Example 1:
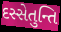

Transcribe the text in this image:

દસ્સેતુન્તિ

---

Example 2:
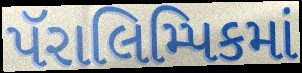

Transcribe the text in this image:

પૅરાલિમ્પિકમાં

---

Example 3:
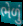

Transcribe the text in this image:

ભેળું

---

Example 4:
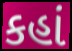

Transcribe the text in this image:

કહાં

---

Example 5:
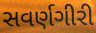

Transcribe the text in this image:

સવર્ણગીરી